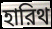
হারিথ